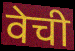
वेची